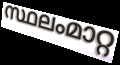
സ്ഥലംമാറ്റ